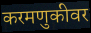
करमणुकीवर